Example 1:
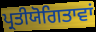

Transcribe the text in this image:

ਪ੍ਰਤੀਯੋਗਿਤਾਵਾਂ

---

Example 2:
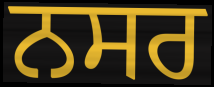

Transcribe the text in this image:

ਨਸਰ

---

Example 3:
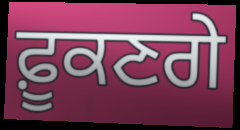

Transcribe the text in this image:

ਫ਼ੂਕਣਗੇ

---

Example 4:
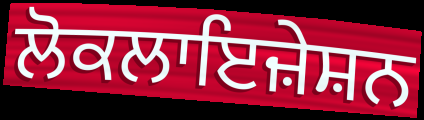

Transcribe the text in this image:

ਲੋਕਲਾਇਜ਼ੇਸ਼ਨ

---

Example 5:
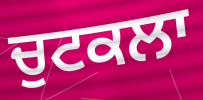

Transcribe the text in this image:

ਚੁਟਕਲਾ